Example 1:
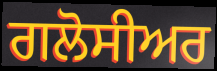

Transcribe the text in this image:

ਗਲੋਸੀਅਰ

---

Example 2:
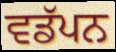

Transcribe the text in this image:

ਵਡੱਪਨ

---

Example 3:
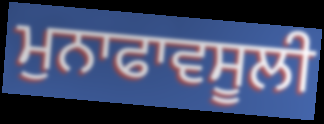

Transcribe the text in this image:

ਮੁਨਾਫਾਵਸੂਲੀ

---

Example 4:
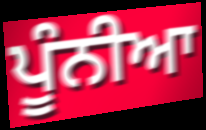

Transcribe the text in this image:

ਪੂੰਨੀਆ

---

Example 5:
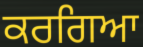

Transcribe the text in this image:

ਕਰਗਿਆ